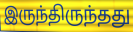
இருந்திருந்தது